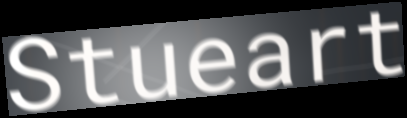
Stueart